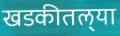
खडकीतल्या